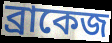
ব্রাকেজ